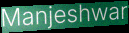
Manjeshwar